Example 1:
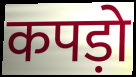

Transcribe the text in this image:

कपड़ो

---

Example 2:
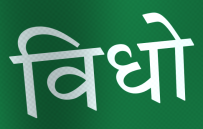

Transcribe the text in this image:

विधो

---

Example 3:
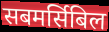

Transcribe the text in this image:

सबमर्सिबिल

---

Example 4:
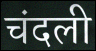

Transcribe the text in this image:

चंदली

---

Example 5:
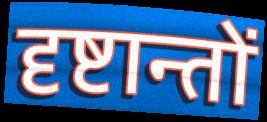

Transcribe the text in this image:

दृष्टान्तों